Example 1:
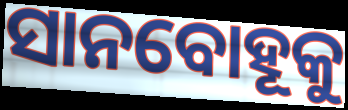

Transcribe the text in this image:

ସାନବୋହୂକୁ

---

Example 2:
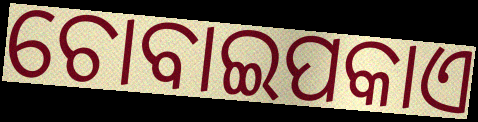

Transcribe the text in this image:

ଚୋବାଇପକାଏ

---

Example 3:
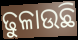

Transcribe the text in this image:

ଢୁଳାଉଛି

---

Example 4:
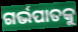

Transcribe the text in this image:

ଗର୍ଭପାତକୁ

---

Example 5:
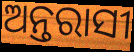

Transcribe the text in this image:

ଅନ୍ତରାସୀ